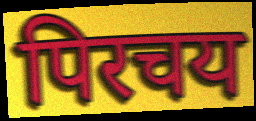
पिरचय